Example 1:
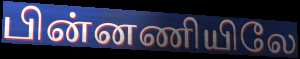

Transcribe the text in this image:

பின்னணியிலே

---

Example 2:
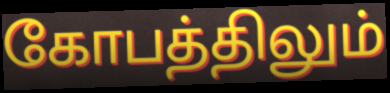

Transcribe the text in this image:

கோபத்திலும்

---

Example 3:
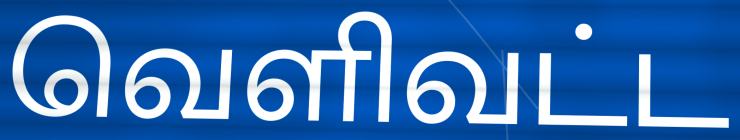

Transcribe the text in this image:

வெளிவட்ட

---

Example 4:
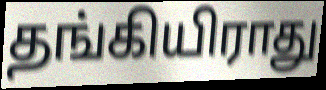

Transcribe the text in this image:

தங்கியிராது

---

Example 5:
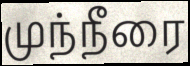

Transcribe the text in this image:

முந்நீரை